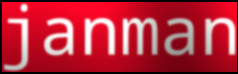
janman